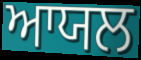
ਆਯਲ